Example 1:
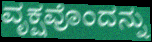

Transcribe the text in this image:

ವೃಕ್ಷವೊಂದನ್ನು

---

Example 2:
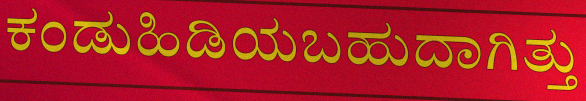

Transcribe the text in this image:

ಕಂಡುಹಿಡಿಯಬಹುದಾಗಿತ್ತು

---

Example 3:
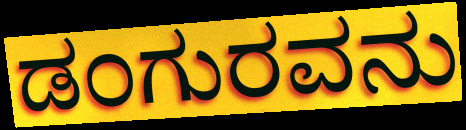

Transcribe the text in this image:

ಡಂಗುರವನು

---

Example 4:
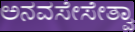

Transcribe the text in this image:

ಅನವಸೇಸೇತ್ವಾ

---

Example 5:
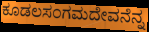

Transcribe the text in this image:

ಕೂಡಲಸಂಗಮದೇವನೆನ್ನ